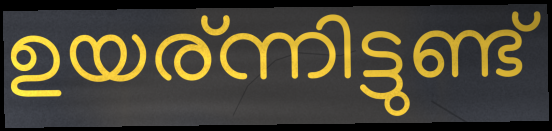
ഉയര്ന്നിട്ടുണ്ട്